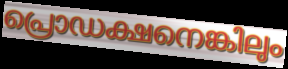
പ്രൊഡക്ഷനെങ്കിലും